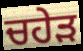
ਚਹੇੜ